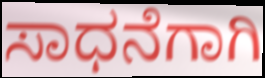
ಸಾಧನೆಗಾಗಿ